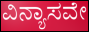
ವಿನ್ಯಾಸವೇ